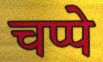
चप्पे